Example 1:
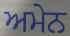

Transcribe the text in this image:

ਅਮੇਨ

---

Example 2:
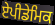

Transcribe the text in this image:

ਏਪੀਡੇਮਿਕ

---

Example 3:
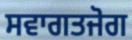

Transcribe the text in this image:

ਸਵਾਗਤਜੋਗ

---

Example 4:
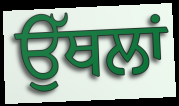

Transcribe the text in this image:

ਉੱਥਲਾਂ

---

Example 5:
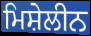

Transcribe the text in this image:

ਮਿਸ਼ੇਲੀਨ